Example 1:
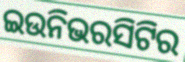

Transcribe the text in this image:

ଇଉନିଭରସିଟିର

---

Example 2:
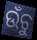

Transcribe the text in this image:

ଉଁଚୁ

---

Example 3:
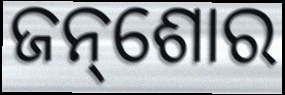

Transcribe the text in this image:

ଜନ୍‌ଶୋର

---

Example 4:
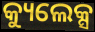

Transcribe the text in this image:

କ୍ୟୁଲେକ୍ସ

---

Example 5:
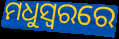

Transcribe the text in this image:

ମଧୁସ୍ୱରରେ